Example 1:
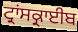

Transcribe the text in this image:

ਟ੍ਰਾਂਸਕ੍ਰਾਈਬ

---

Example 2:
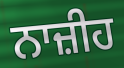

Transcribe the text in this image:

ਨਾਜ਼ੀਹ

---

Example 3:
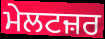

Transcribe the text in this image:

ਮੇਲਟਜ਼ਰ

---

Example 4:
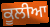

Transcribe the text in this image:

ਕੂਲੀਆ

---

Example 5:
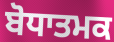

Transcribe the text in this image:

ਬੋਧਾਤਮਕ